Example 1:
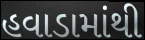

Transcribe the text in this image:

હવાડામાંથી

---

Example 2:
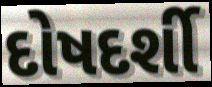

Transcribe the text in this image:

દોષદર્શી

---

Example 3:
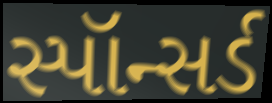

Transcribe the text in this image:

સ્પૉન્સર્ડ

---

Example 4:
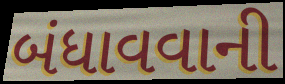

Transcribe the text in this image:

બંધાવવાની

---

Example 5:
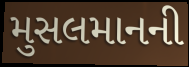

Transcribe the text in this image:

મુસલમાનની